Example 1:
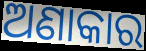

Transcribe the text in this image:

ଅଣାକାର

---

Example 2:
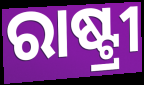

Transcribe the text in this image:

ରାଷ୍ଟ୍ରୀ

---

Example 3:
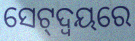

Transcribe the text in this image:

ସେଟ୍‌ଦ୍ଵୟରେ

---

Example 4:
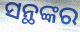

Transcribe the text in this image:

ସନ୍ଥଙ୍କର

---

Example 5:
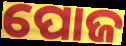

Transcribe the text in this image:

ପୋଜ